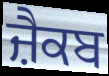
ਜ਼ੈਕਬ